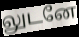
லுடனே